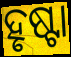
ହୃଷ୍ଟା